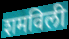
शमविली